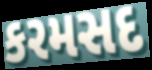
કરમસદ